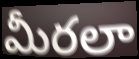
మీరలా